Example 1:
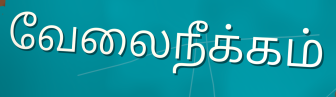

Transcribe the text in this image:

வேலைநீக்கம்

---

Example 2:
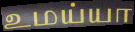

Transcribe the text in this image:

உமய்யா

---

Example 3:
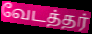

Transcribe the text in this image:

வேடத்தர்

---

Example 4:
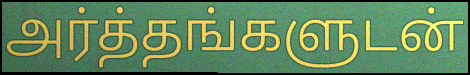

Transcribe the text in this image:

அர்த்தங்களுடன்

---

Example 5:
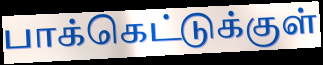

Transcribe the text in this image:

பாக்கெட்டுக்குள்